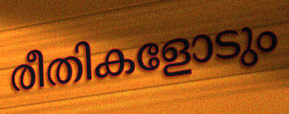
രീതികളോടും